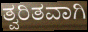
ತ್ವರಿತವಾಗಿ